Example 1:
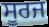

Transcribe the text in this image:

ਸੂਰਜ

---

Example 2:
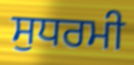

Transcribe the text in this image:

ਸੁਧਰਮੀ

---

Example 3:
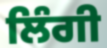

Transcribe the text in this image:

ਲਿੰਗੀ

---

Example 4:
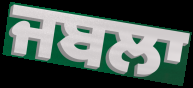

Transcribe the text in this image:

ਜਬਲਾ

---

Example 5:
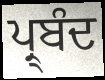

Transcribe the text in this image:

ਪ੍ਰ੍ਬੰਦ